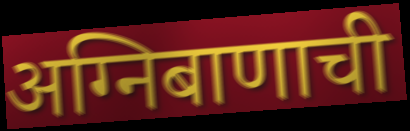
अग्निबाणाची